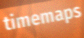
timemaps